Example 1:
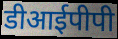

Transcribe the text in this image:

डीआईपीपी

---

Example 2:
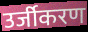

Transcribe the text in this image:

उर्जीकरण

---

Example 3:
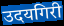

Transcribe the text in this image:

उदयगिरी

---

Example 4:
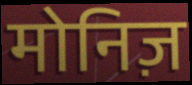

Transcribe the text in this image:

मोनिज़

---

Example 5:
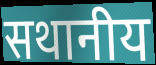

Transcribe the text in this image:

सथानीय